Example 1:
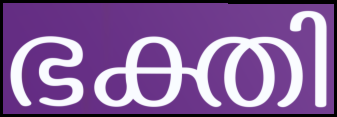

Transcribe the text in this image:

ഭക്തി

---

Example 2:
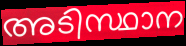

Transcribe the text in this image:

അടിസ്ഥാന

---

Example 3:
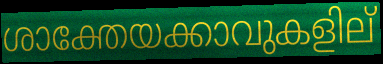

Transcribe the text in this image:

ശാക്തേയക്കാവുകളില്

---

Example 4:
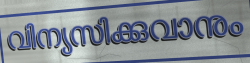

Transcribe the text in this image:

വിന്യസിക്കുവാനും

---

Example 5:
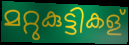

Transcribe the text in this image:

മറ്റുകുട്ടികള്